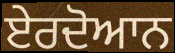
ਏਰਦੋਆਨ